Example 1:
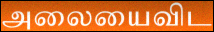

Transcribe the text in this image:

அலையைவிட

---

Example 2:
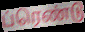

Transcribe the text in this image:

ப்ரெண்டு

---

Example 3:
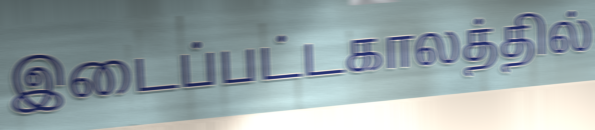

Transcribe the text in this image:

இடைப்பட்டகாலத்தில்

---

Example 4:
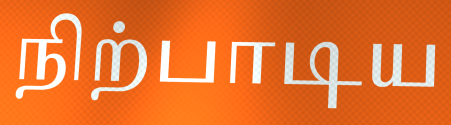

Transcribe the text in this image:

நிற்பாடிய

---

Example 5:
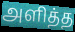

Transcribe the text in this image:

அளித்த